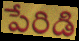
పేరిడి